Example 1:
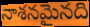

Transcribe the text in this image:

నాశనమైనది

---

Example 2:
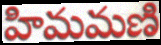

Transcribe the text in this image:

హిమమణి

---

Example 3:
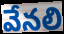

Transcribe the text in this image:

వేనలి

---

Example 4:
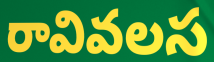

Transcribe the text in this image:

రావివలస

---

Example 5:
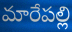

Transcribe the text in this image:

మారేపల్లి